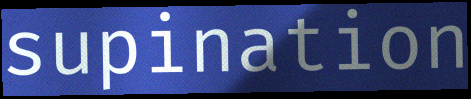
supination